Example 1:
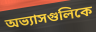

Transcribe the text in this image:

অভ্যাসগুলিকে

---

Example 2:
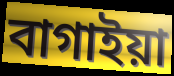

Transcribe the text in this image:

বাগাইয়া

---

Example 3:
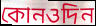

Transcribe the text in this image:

কোনওদিন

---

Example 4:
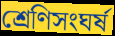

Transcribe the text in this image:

শ্রেণিসংঘর্ষ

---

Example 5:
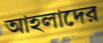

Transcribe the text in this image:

আহলাদের